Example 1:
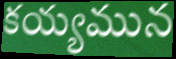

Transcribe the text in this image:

కయ్యమున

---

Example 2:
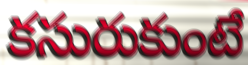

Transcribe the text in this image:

కసురుకుంటే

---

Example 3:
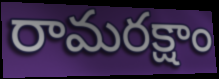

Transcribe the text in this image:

రామరక్షాం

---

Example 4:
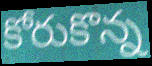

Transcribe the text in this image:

కోరుకొన్న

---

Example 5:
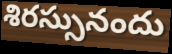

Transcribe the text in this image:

శిరస్సునందు